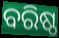
ବରିଷ୍ଠ